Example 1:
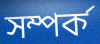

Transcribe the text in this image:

সম্পর্ক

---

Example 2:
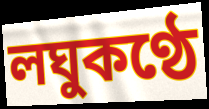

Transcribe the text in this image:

লঘুকণ্ঠে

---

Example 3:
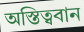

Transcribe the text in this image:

অস্তিত্ববান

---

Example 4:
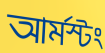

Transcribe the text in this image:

আর্মস্টং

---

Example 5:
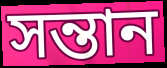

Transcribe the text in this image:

সন্তান